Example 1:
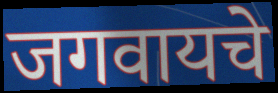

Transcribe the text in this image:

जगवायचे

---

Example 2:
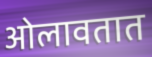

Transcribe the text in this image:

ओलावतात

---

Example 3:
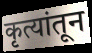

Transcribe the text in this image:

कृत्यांतून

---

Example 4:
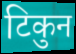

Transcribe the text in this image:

टिकुन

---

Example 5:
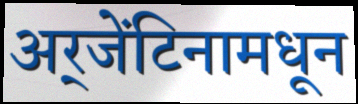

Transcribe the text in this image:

अर्जेंटिनामधून